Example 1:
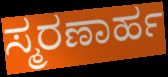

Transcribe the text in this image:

ಸ್ಮರಣಾರ್ಹ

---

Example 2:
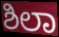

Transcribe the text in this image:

ಶಿಲಾ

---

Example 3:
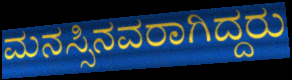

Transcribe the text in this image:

ಮನಸ್ಸಿನವರಾಗಿದ್ದರು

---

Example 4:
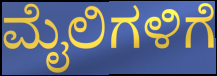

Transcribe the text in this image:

ಮೈಲಿಗಳಿಗೆ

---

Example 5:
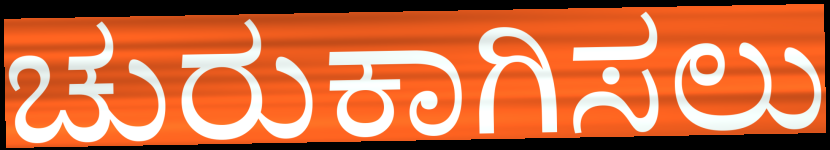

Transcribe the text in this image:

ಚುರುಕಾಗಿಸಲು